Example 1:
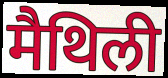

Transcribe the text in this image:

मैथिली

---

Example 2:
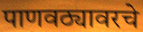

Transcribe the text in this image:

पाणवठ्यावरचे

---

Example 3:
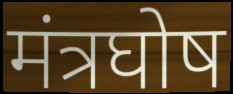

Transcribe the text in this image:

मंत्रघोष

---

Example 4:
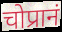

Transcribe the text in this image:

चोप्रानं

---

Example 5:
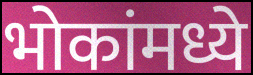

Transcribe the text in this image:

भोकांमध्ये